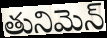
తునిమెన్